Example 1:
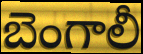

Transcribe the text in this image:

బెంగాలీ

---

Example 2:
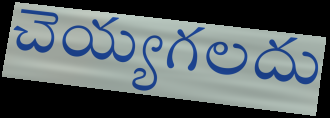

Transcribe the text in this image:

చెయ్యగలదు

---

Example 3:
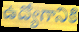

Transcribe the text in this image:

ఉద్యోగానికి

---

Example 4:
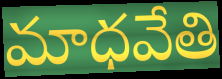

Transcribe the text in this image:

మాధవేతి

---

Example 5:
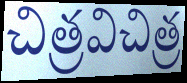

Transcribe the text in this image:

చిత్రవిచిత్ర